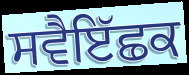
ਸਵੈਇੱਛਕ